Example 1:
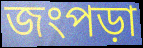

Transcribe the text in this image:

জংপড়া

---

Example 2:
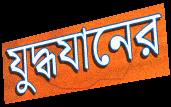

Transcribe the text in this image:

যুদ্ধযানের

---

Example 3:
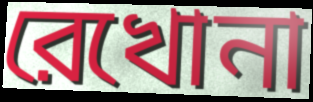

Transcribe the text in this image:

রেখোনা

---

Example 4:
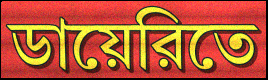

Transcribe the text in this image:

ডায়েরিতে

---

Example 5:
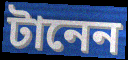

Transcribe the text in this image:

টানেন